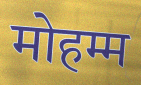
मोहम्म